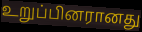
உறுப்பினரானது